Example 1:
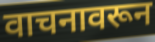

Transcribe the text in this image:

वाचनावरून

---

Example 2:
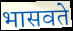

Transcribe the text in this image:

भासवते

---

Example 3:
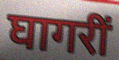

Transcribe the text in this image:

घागरीं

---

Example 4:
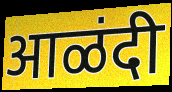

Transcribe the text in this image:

आळंदी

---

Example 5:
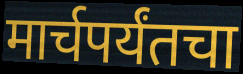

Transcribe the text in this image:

मार्चपर्यंतचा